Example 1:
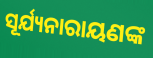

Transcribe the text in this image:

ସୂର୍ଯ୍ୟନାରାୟଣଙ୍କ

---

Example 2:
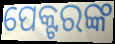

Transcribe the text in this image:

ପେକ୍ଟରଙ୍କ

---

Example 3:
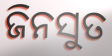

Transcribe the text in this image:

ଜିନସୁତ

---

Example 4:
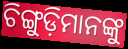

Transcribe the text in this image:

ଚିଙ୍ଗୁଡ଼ିମାନଙ୍କୁ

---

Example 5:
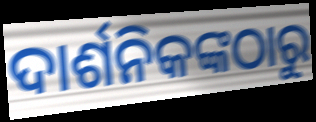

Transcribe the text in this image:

ଦାର୍ଶନିକଙ୍କଠାରୁ